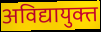
अविद्यायुक्त